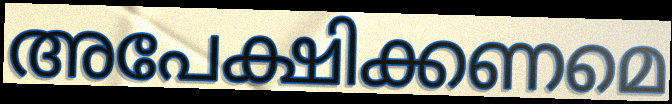
അപേക്ഷിക്കണമെ